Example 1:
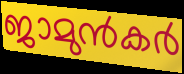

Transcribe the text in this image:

ജാമുൻകർ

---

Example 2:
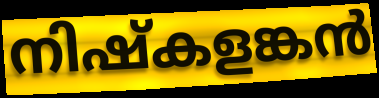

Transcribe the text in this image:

നിഷ്കളങ്കൻ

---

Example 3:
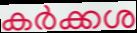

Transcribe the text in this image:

കർക്കശ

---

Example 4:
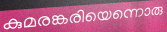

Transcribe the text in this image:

കുമരങ്കരിയെന്നൊരു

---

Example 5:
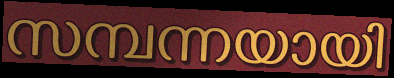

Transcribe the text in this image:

സമ്പന്നയായി